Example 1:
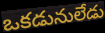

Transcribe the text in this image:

ఒకడునులేడు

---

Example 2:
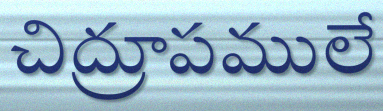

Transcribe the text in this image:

చిద్రూపములే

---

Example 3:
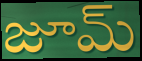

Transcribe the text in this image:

జూమ్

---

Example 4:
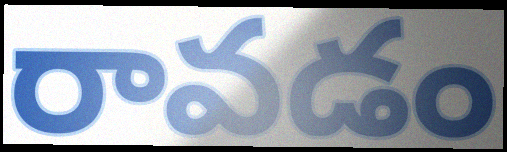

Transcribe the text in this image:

రావడం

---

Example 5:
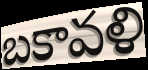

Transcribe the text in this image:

బకావళి